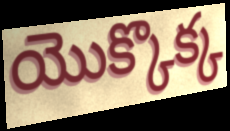
యొక్కొక్క